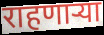
राहणाऱ्या